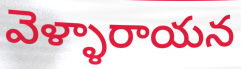
వెళ్ళారాయన